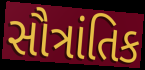
સૌત્રાંતિક